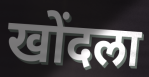
खोंदला